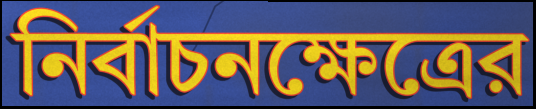
নির্বাচনক্ষেত্রের